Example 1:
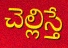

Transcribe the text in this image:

చెల్లిస్తే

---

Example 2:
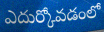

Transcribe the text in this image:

ఎదుర్కోవడంలో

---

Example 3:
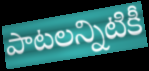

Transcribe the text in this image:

పాటలన్నిటికీ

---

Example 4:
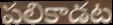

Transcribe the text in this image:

పలికాడట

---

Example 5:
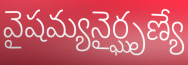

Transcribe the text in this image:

వైషమ్యనైర్ఘృణ్యే